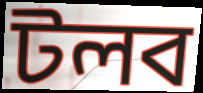
টলব